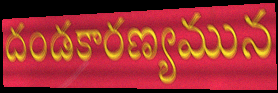
దండకారణ్యమున